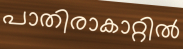
പാതിരാകാറ്റിൽ